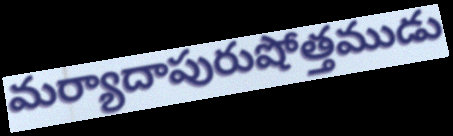
మర్యాదాపురుషోత్తముడు